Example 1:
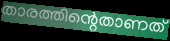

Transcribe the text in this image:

താരത്തിന്റെതാണത്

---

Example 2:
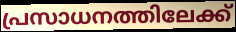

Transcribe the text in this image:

പ്രസാധനത്തിലേക്ക്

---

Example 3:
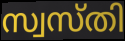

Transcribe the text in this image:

സ്വസ്തി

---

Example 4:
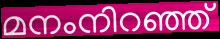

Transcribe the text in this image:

മനംനിറഞ്ഞ്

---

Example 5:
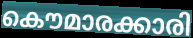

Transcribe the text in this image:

കൌമാരക്കാരി